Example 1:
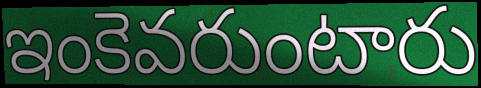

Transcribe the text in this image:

ఇంకెవరుంటారు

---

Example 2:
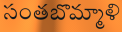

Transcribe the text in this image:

సంతబొమ్మాళి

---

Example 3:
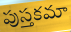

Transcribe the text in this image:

పుస్తకమా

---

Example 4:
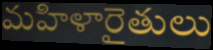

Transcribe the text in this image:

మహిళారైతులు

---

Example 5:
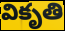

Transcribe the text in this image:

వికృతి